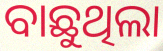
ବାଛୁଥିଲା